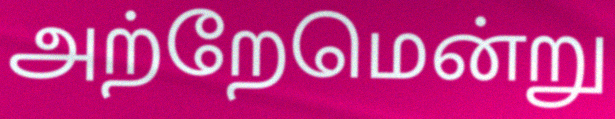
அற்றேமென்று